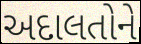
અદાલતોને